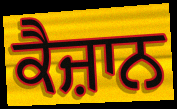
ਕੈਜ਼ਾਨ